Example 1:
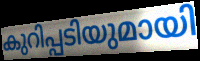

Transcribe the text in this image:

കുറിപ്പടിയുമായി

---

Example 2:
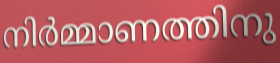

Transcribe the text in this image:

നിർമ്മാണത്തിനു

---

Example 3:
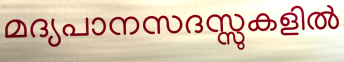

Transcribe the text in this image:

മദ്യപാനസദസ്സുകളിൽ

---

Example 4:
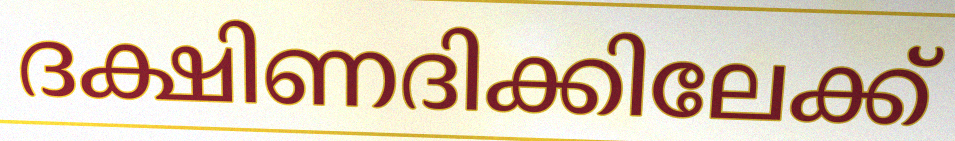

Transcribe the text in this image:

ദക്ഷിണദിക്കിലേക്ക്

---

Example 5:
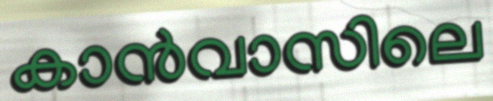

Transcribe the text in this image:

കാൻവാസിലെ